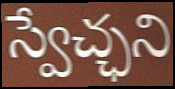
స్వేచ్ఛని